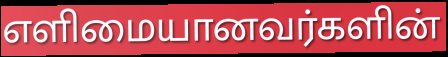
எளிமையானவர்களின்